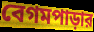
বেগমপাড়ার